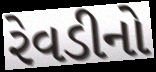
રેવડીનો